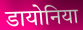
डायोनिया